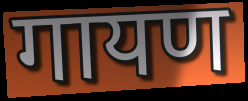
गायण